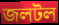
জলটল